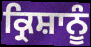
ਕ੍ਰਿਸ਼ਾਨੂੰ